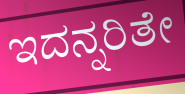
ಇದನ್ನರಿತೇ